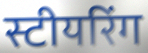
स्टीयरिंग